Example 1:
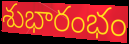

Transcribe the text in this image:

శుభారంభం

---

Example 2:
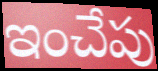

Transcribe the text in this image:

ఇంచేపు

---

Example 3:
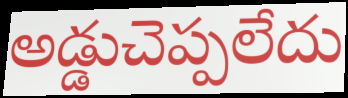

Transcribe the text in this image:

అడ్డుచెప్పలేదు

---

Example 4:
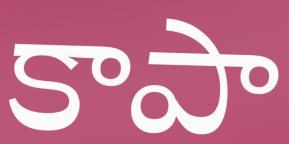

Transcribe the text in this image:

కాపా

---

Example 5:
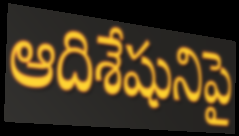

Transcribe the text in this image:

ఆదిశేషునిపై